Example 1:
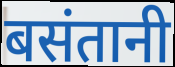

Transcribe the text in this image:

बसंतानी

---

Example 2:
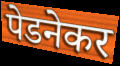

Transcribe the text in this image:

पेडनेकर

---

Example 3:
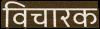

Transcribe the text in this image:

विचारक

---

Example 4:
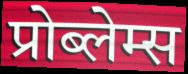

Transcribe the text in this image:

प्रोब्लेम्स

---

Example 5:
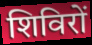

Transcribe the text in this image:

शिविरों